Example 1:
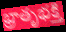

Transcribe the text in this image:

భ్రాతృభక్తి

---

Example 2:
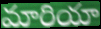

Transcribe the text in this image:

మారియా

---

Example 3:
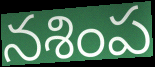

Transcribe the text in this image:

నశింప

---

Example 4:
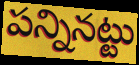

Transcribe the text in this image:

పన్నినట్టు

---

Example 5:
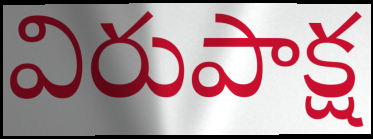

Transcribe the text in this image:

విరుపాక్ష